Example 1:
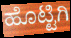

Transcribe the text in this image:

ಹೊಟ್ಟಿಗಿ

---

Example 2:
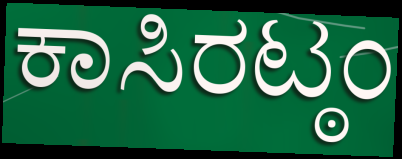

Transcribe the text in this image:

ಕಾಸಿರಟ್ಠಂ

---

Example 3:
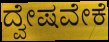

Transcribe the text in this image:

ದ್ವೇಷವೇಕೆ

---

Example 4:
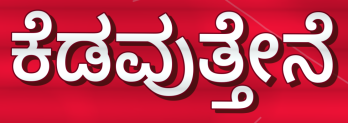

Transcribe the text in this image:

ಕೆಡವುತ್ತೇನೆ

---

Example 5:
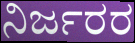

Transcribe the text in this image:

ನಿರ್ಜರರ